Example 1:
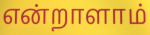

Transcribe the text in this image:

என்றாளாம்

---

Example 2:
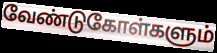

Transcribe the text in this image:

வேண்டுகோள்களும்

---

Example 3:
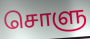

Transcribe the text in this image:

சொளு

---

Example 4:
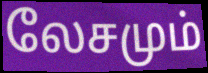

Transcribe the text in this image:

லேசமும்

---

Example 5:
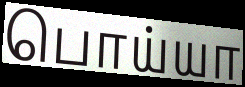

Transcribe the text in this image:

பொய்யா